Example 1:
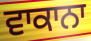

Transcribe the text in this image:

ਵਾਕਾਨਾ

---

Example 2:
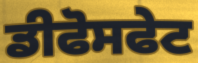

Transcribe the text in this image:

ਡੀਫੋਸਫੇਟ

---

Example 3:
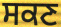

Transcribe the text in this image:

ਸਕਣ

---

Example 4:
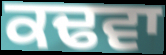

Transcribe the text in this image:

ਕਢਵਾ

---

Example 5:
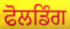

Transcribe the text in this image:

ਫੋਲਡਿੰਗ